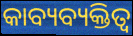
କାବ୍ୟବ୍ୟକ୍ତିତ୍ୱ